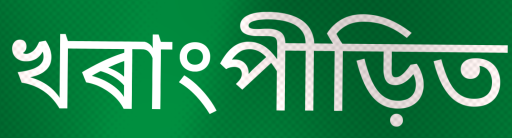
খৰাংপীড়িত